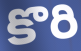
కొరి